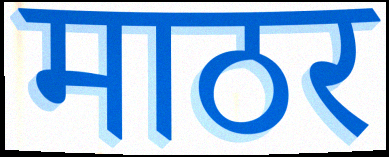
माठर